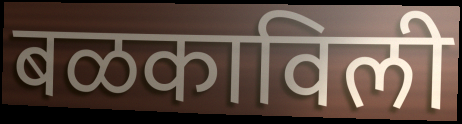
बळकाविली